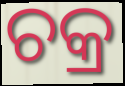
ଚକ୍ର